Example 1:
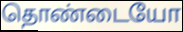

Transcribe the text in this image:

தொண்டையோ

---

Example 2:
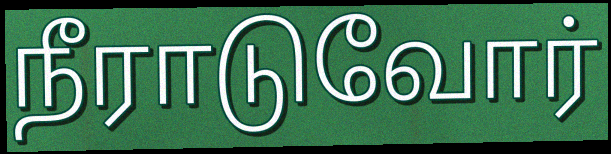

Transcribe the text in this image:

நீராடுவோர்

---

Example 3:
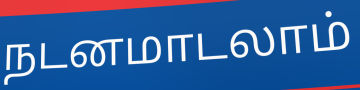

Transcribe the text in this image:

நடனமாடலாம்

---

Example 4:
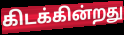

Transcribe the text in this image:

கிடக்கின்றது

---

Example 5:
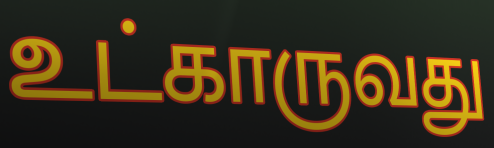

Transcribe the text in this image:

உட்காருவது